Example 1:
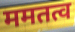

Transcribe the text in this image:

ममतत्व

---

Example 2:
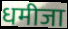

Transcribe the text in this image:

धमीजा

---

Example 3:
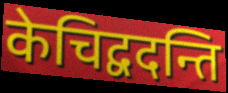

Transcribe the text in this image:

केचिद्वदन्ति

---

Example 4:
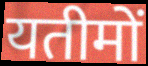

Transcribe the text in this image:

यतीमों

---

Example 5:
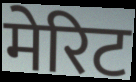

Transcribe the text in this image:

मेरिट